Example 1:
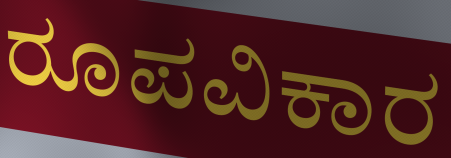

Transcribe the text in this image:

ರೂಪವಿಕಾರ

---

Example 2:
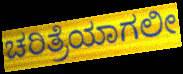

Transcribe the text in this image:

ಚರಿತ್ರೆಯಾಗಲೀ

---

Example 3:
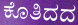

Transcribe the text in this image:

ಕೊತಿದದ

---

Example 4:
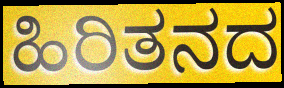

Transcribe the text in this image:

ಹಿರಿತನದ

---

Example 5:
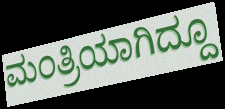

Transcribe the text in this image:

ಮಂತ್ರಿಯಾಗಿದ್ದೂ